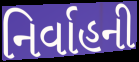
નિર્વાહની